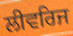
ਲੀਵਰਿਜ